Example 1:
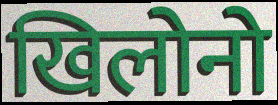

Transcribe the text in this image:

खिलोनो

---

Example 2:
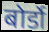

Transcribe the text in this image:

बोर्डो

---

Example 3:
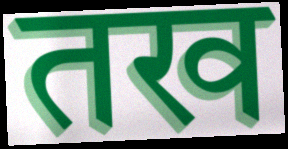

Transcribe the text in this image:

तख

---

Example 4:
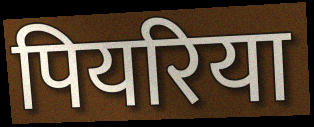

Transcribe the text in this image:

पियरिया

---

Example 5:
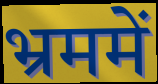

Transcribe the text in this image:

भ्रममें